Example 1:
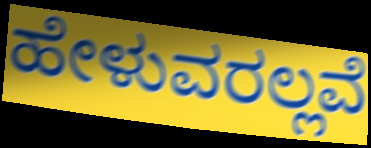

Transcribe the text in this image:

ಹೇಳುವರಲ್ಲವೆ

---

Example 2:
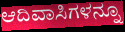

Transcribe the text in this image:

ಆದಿವಾಸಿಗಳನ್ನೂ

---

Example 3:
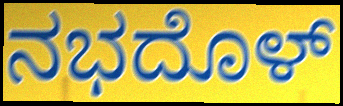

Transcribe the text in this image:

ನಭದೊಳ್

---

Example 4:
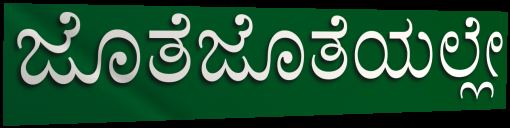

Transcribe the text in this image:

ಜೊತೆಜೊತೆಯಲ್ಲೇ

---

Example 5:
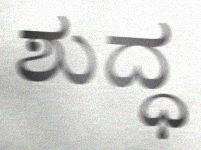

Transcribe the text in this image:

ಶುದ್ಧ